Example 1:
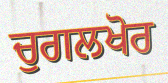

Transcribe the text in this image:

ਚੁਗਲਖੋਰ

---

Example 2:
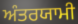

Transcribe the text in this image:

ਅੰਤਰਯਾਮੀ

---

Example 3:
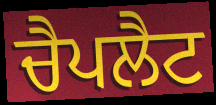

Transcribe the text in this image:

ਚੈਪਲੈਟ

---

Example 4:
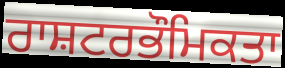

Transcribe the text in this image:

ਰਾਸ਼ਟਰਭੌਮਿਕਤਾ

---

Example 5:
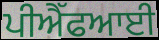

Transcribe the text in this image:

ਪੀਐੱਫਆਈ